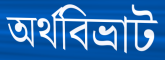
অর্থবিভ্রাট